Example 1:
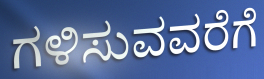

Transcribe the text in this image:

ಗಳಿಸುವವರೆಗೆ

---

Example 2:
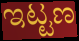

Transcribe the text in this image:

ಇಟ್ಟಣ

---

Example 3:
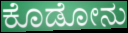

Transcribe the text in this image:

ಕೊಡೋನು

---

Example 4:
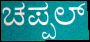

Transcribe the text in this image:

ಚಪ್ಪಲ್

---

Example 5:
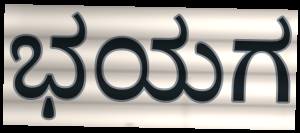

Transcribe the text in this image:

ಭಯಗ